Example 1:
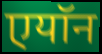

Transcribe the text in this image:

एयॉन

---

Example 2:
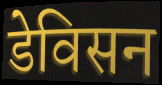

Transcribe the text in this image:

डेविसन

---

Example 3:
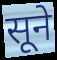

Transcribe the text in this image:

सूने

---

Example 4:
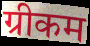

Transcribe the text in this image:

ग्रीकम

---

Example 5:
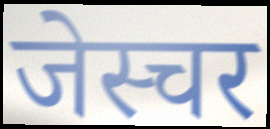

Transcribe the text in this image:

जेस्चर